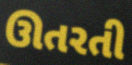
ઊતરતી